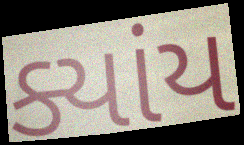
ક્યાંય